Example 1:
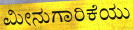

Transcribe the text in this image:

ಮೀನುಗಾರಿಕೆಯು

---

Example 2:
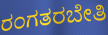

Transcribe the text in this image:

ರಂಗತರಬೇತಿ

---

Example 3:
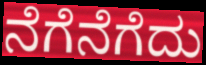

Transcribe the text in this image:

ನೆಗೆನೆಗೆದು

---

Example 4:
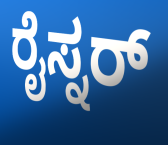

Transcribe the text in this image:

ರೈಸ್ನರ್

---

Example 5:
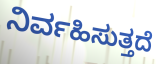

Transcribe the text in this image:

ನಿರ್ವಹಿಸುತ್ತದೆ